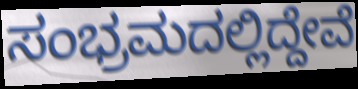
ಸಂಭ್ರಮದಲ್ಲಿದ್ದೇವೆ